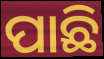
ପାଛି